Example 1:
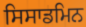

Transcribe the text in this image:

ਸਿਸਾਡਮਿਨ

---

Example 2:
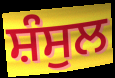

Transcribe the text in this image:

ਸ਼ੰਸੁਲ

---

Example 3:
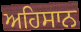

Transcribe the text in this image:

ਅਹਿਸਾਨ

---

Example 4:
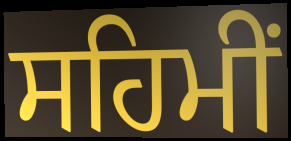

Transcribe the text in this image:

ਸਹਿਮੀਂ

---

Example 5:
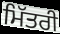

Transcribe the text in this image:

ਮਿੱਤਰੀ